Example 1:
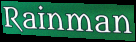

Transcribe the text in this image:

Rainman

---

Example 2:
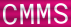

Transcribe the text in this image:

CMMS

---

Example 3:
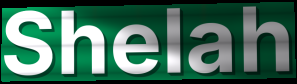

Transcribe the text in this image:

Shelah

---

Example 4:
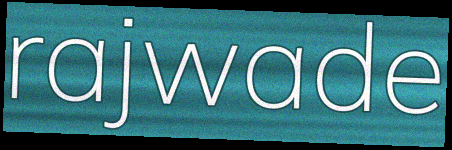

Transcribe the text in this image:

rajwade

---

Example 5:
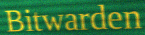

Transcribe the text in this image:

Bitwarden